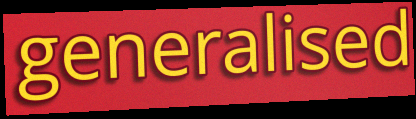
generalised